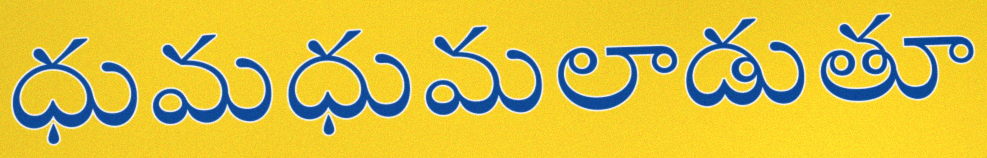
ధుమధుమలాడుతూ